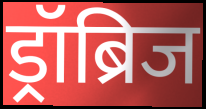
ड्रॉब्रिज